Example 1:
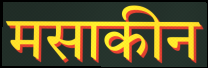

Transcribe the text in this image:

मसाकीन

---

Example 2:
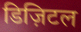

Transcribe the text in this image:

डिज़िटल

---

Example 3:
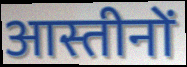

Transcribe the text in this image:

आस्तीनों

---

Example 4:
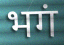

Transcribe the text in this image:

भगं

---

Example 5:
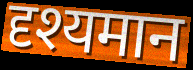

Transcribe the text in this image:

दृश्यमान